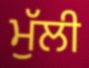
ਮੁੱਲੀ